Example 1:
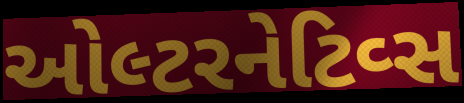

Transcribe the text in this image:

ઓલ્ટરનેટિવ્સ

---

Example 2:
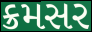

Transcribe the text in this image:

ક્રમસર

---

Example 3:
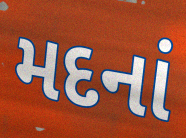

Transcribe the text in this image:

મદનાં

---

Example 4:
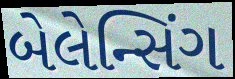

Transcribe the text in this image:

બેલેન્સિંગ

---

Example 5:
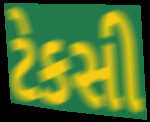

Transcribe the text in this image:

ટેકસી